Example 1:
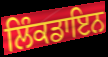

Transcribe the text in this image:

ਲਿੰਕਡਾਇਨ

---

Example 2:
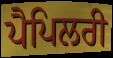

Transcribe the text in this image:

ਪੈਪਿਲਰੀ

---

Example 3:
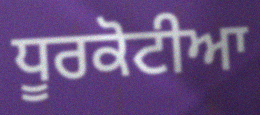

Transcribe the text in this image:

ਧੂਰਕੋਟੀਆ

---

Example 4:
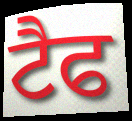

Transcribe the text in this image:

ਟੈਫ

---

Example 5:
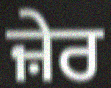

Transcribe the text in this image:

ਜ਼ੇਰ